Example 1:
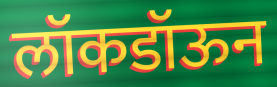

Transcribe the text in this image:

लॉकडॉऊन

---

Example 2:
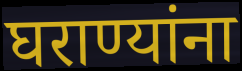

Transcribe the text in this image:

घराण्यांना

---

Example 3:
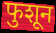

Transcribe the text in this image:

फुशून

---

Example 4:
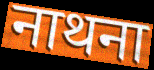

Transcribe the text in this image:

नाथना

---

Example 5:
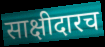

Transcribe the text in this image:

साक्षीदारच